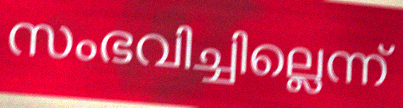
സംഭവിച്ചില്ലെന്ന്